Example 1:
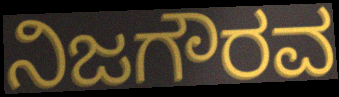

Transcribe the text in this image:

ನಿಜಗೌರವ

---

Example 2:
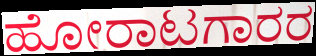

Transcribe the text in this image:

ಹೋರಾಟಗಾರರ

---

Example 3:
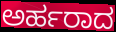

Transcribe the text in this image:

ಅರ್ಹರಾದ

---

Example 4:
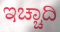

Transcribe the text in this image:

ಇಚ್ಚಾದಿ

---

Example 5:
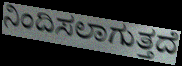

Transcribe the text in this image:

ನಿಂದಿಸಲಾಗುತ್ತದೆ